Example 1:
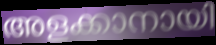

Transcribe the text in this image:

അളക്കാനായി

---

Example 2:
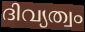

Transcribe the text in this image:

ദിവ്യത്വം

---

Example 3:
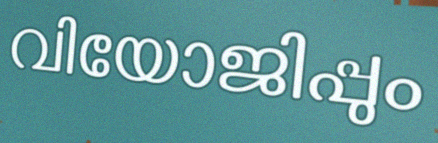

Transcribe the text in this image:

വിയോജിപ്പും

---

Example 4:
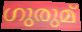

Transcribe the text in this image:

ഗുരുമ്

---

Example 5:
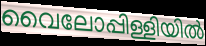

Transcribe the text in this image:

വൈലോപ്പിള്ളിയിൽ